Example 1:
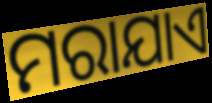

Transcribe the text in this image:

ମରାଯାଏ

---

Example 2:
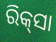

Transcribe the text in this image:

ରିକ୍‌ସା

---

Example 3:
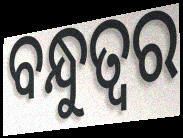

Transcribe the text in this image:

ବନ୍ଧୁତ୍ବର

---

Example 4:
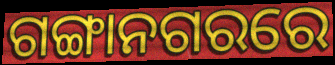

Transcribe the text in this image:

ଗଙ୍ଗାନଗରରେ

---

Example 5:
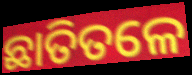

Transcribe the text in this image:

ଛାତିତଳେ